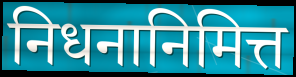
निधनानिमित्त